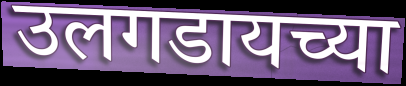
उलगडायच्या